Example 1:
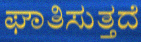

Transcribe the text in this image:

ಘಾತಿಸುತ್ತದೆ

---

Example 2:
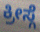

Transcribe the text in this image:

ಕ್ರೀಸ್ಗೆ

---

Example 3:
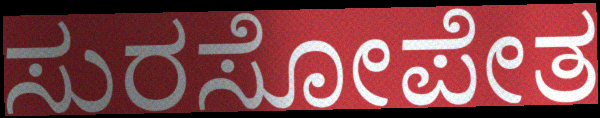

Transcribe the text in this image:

ಸುರಸೋಪೇತ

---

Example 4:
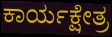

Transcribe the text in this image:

ಕಾರ್ಯಕ್ಷೇತ್ರ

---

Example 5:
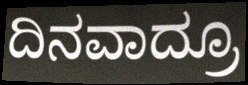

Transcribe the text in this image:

ದಿನವಾದ್ರೂ